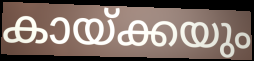
കായ്ക്കയും